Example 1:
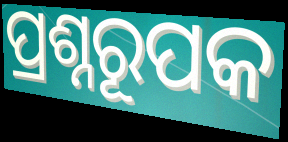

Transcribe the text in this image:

ପ୍ରଶ୍ନରୂପକ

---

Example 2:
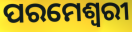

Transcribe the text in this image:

ପରମେଶ୍ୱରୀ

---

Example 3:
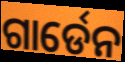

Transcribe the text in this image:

ଗାର୍ଡେନ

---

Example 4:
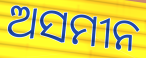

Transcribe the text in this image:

ଅସମୀନ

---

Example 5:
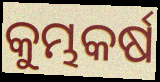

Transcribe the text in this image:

କୁମ୍ଭକର୍ଷ